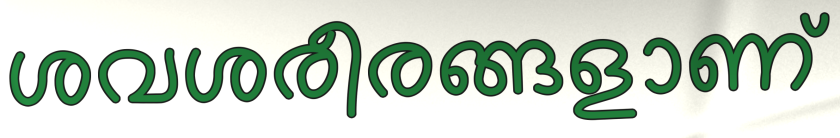
ശവശരീരങ്ങളാണ്